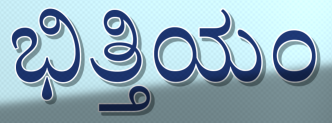
ಭಿತ್ತಿಯಂ